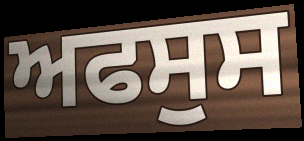
ਅਫਸੁਸ